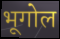
भूगोल